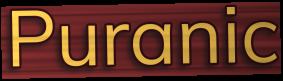
Puranic